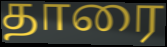
தாரை